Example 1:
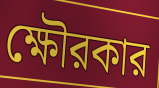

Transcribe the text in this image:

ক্ষৌরকার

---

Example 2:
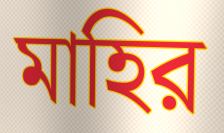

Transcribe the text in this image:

মাহির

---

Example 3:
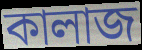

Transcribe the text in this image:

কালাজ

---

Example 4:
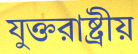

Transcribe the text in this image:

যুক্তরাষ্ট্রীয়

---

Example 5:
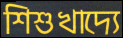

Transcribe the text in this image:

শিশুখাদ্যে